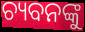
ଚ୍ୟବନଙ୍କୁ